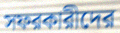
সফরকারীদের